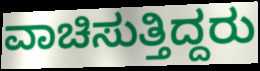
ವಾಚಿಸುತ್ತಿದ್ದರು